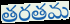
తరతమ